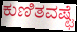
ಕುಣಿತವಷ್ಟೆ